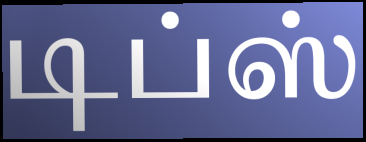
டிப்ஸ்